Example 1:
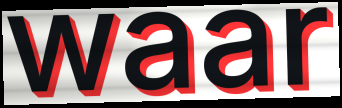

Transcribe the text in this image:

waar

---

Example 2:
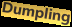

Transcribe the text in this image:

Dumpling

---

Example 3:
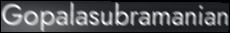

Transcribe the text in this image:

Gopalasubramanian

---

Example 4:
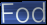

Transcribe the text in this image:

Fod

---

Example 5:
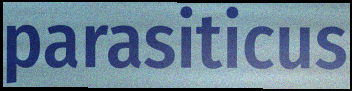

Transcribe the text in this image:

parasiticus